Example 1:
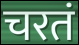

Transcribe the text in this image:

चरतं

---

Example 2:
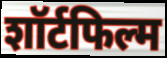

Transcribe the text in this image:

शॉर्टफिल्म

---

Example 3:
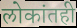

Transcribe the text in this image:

लोकांतही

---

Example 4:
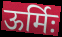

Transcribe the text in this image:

ऊर्मिः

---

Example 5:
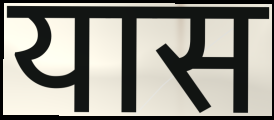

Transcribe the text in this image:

यास